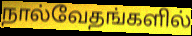
நால்வேதங்களில்